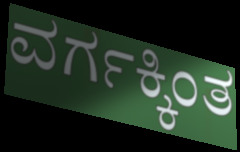
ವರ್ಗಕ್ಕಿಂತ